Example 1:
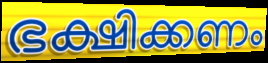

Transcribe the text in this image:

ഭക്ഷിക്കണം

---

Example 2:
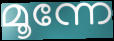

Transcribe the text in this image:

മൂന്നേ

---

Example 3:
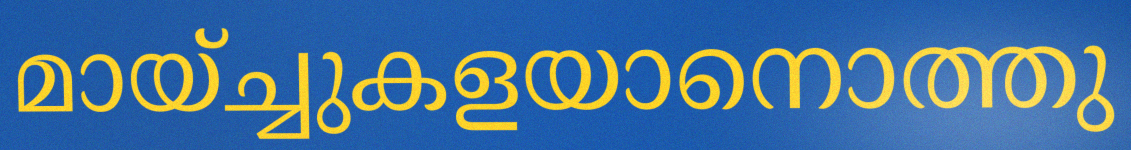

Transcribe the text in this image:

മായ്ച്ചുകളയാനൊത്തു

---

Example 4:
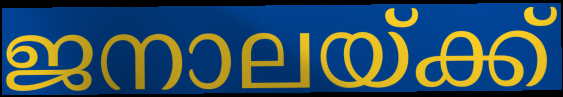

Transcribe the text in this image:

ജനാലയ്ക്ക്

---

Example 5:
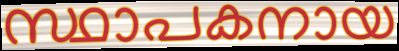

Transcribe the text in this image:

സ്ഥാപകനായ